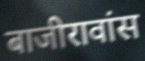
बाजीरावांस